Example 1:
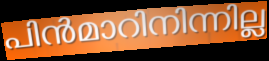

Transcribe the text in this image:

പിൻമാറിനിന്നില്ല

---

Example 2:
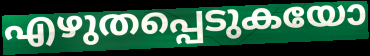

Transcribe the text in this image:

എഴുതപ്പെടുകയോ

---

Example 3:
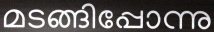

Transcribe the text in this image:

മടങ്ങിപ്പോന്നു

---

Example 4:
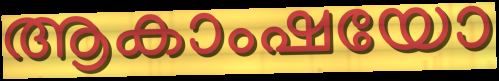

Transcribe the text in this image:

ആകാംഷയോ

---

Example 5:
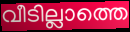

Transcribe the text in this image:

വീടില്ലാത്തെ